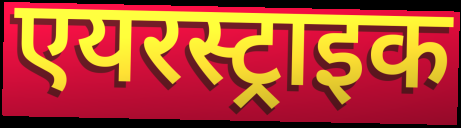
एयरस्ट्राइक